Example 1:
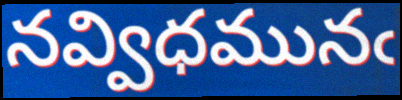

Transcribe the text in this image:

నవ్విధమునఁ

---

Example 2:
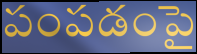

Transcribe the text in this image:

పంపడంపై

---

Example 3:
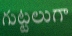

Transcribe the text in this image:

గుట్టలుగా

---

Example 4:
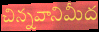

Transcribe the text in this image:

చిన్నవానిమీద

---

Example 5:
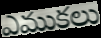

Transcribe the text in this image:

ఎముకలు